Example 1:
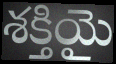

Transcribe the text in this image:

శక్తియై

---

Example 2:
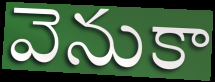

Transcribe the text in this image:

వెనుకా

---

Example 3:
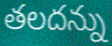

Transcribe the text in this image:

తలదన్ను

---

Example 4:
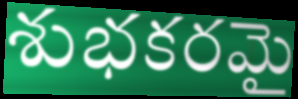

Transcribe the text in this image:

శుభకరమై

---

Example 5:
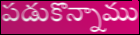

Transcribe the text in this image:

పడుకొన్నాము